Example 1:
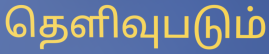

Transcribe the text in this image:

தெளிவுபடும்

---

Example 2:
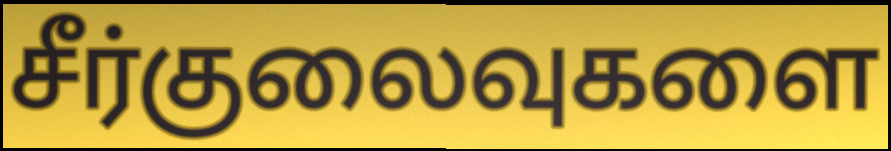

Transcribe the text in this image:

சீர்குலைவுகளை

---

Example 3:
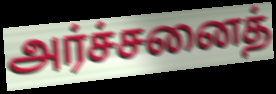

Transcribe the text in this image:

அர்ச்சனைத்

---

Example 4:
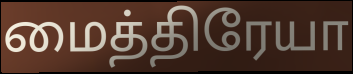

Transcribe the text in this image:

மைத்திரேயா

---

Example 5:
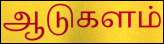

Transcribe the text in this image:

ஆடுகளம்